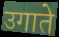
उगाते